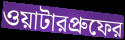
ওয়াটারপ্রুফের